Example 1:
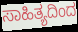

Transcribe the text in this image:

ಸಾಹಿತ್ಯದಿಂದ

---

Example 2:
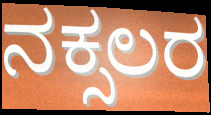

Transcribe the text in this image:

ನಕ್ಸಲರ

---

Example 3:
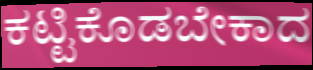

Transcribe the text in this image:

ಕಟ್ಟಿಕೊಡಬೇಕಾದ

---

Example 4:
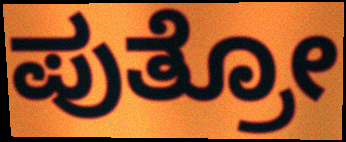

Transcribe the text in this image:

ಪುತ್ರೋ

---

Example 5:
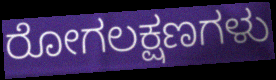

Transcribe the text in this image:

ರೋಗಲಕ್ಷಣಗಳು